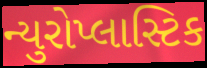
ન્યુરોપ્લાસ્ટિક